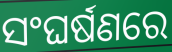
ସଂଘର୍ଷଣରେ